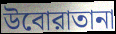
উবোরাতানা